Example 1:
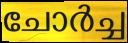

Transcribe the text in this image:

ചോർച്ച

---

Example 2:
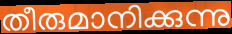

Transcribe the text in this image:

തീരുമാനിക്കുന്നു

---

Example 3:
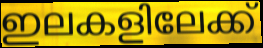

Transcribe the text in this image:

ഇലകളിലേക്ക്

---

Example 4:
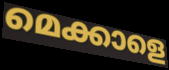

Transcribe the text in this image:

മെക്കാളെ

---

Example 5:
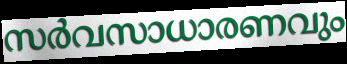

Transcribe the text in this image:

സർവസാധാരണവും